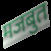
मजबुत